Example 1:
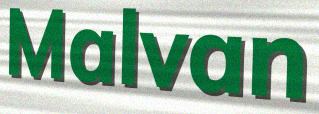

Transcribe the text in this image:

Malvan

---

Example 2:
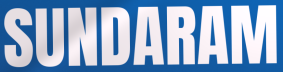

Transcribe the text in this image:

SUNDARAM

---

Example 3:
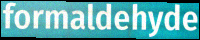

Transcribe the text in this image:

formaldehyde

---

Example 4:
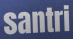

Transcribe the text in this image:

santri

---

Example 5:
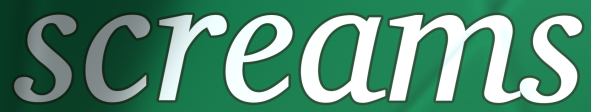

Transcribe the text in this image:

screams